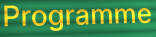
Programme